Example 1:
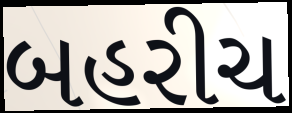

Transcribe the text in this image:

બહરીચ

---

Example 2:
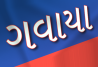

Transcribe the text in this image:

ગવાયા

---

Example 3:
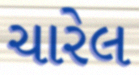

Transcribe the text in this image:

ચારેલ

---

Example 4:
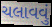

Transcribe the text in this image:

ચલાવવું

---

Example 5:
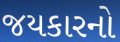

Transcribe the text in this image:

જયકારનો